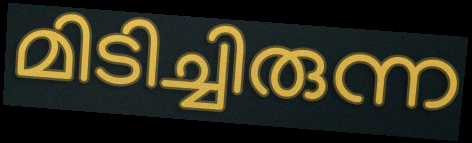
മിടിച്ചിരുന്ന